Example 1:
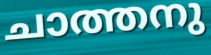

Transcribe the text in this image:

ചാത്തനു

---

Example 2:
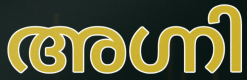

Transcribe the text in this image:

അഗ്നി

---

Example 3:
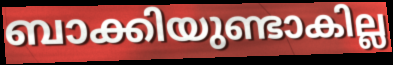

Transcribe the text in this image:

ബാക്കിയുണ്ടാകില്ല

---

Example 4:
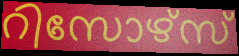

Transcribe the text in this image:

റിസോഴ്സ്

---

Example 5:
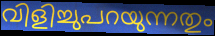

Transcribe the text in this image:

വിളിച്ചുപറയുന്നതും